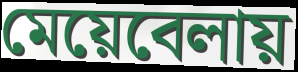
মেয়েবেলায়